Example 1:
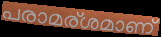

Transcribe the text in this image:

പരാമര്ശമാണ്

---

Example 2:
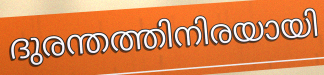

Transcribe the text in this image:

ദുരന്തത്തിനിരയായി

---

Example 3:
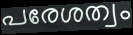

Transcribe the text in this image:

പരേശത്വം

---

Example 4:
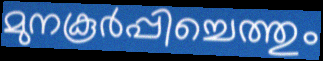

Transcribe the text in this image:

മുനകൂർപ്പിച്ചെത്തും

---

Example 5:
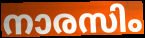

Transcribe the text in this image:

നാരസിം